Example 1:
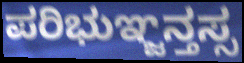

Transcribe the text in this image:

ಪರಿಭುಞ್ಜನ್ತಸ್ಸ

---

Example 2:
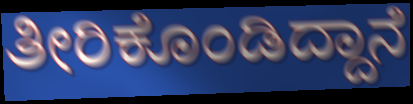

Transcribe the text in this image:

ತೀರಿಕೊಂಡಿದ್ದಾನೆ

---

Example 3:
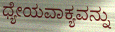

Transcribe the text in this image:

ಧ್ಯೇಯವಾಕ್ಯವನ್ನು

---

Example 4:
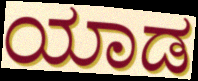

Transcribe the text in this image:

ಯಾಡ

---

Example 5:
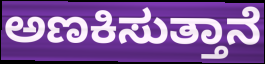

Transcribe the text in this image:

ಅಣಕಿಸುತ್ತಾನೆ